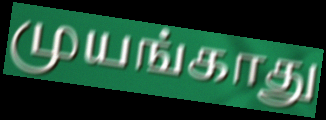
முயங்காது